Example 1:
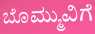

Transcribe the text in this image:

ಬೊಮ್ಮುವಿಗೆ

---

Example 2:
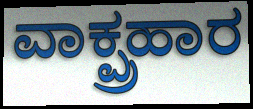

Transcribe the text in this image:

ವಾಕ್ಪ್ರಹಾರ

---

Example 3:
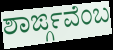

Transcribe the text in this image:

ಶಾರ್ಙ್ಗವೆಂಬ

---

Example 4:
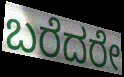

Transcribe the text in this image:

ಬರೆದರೇ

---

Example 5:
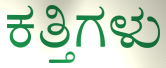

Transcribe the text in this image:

ಕತ್ತಿಗಳು